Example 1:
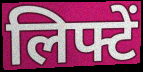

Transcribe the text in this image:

लिफ्टें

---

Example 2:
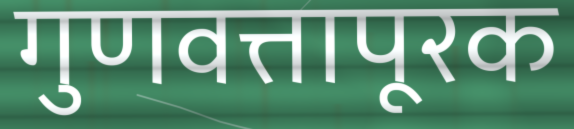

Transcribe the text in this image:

गुणवत्तापूरक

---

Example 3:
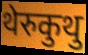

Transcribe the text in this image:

थेरुकुथु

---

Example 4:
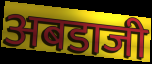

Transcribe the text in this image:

अबडाजी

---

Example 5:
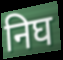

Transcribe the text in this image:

निघ